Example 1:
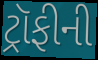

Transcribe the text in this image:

ટ્રૉફીની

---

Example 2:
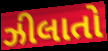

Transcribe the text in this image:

ઝીલાતો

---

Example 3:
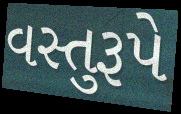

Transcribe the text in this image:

વસ્તુરૂપે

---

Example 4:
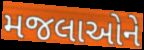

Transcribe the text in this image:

મજલાઓને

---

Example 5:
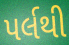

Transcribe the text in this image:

પર્લથી